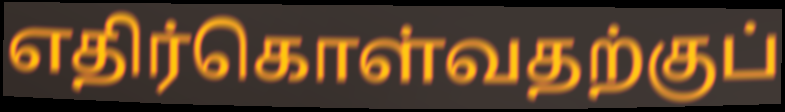
எதிர்கொள்வதற்குப்